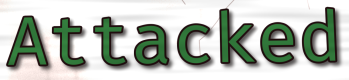
Attacked